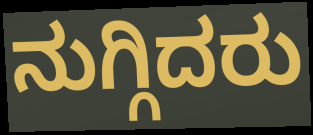
ನುಗ್ಗಿದರು